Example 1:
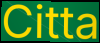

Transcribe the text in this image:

Citta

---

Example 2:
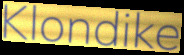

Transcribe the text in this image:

Klondike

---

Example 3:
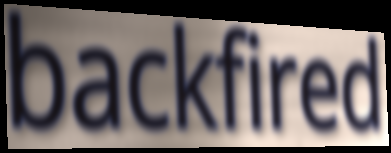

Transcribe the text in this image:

backfired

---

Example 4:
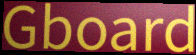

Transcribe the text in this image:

Gboard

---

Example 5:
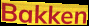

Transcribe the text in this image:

Bakken